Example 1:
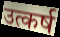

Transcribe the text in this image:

उत्कर्ष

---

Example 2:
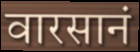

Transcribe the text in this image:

वारसानं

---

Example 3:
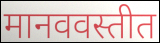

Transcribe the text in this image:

मानववस्तीत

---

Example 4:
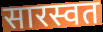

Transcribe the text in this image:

सारस्वत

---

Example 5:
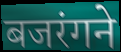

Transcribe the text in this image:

बजरंगने